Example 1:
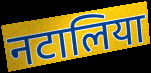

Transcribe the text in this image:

नटालिया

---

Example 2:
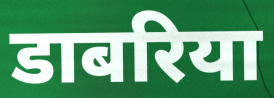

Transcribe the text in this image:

डाबरिया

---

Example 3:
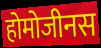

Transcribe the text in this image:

होमोजीनस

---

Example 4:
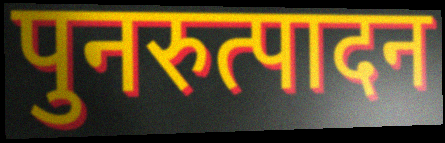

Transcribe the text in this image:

पुनरुत्पादन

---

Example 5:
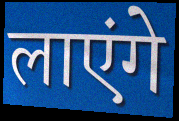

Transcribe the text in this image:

लाएंगे